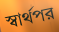
স্বার্থপর